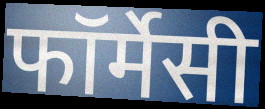
फॉर्मेसी